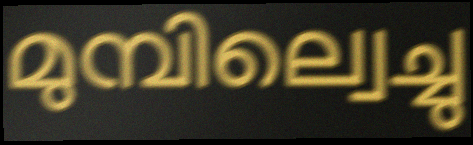
മുമ്പില്വെച്ചു